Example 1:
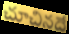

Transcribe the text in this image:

చూచినదే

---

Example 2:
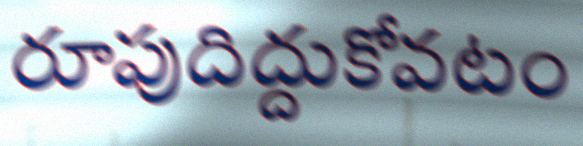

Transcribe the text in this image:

రూపుదిద్దుకోవటం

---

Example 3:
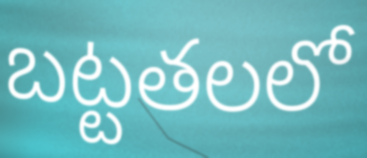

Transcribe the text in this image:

బట్టతలలో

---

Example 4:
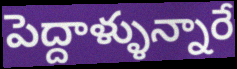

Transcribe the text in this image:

పెద్దాళ్ళున్నారే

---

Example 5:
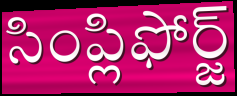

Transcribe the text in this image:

సింప్లిఫోర్జ్